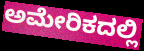
ಅಮೇರಿಕದಲ್ಲಿ